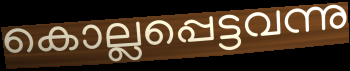
കൊല്ലപ്പെട്ടവന്നു